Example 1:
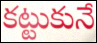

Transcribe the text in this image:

కట్టుకునే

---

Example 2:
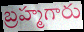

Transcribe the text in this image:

బ్రహ్మగారు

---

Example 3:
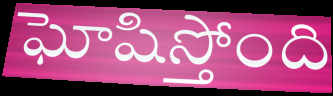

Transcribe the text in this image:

ఘోషిస్తోంది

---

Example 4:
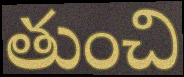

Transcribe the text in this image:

తుంచి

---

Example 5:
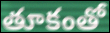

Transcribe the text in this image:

తూకంతో